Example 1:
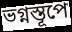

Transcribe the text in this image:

ভগ্নস্তূপে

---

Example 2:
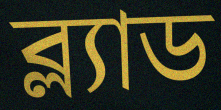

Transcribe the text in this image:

ব্ল্যাড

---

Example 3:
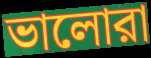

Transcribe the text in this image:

ভালোরা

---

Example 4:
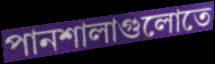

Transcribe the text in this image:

পানশালাগুলোতে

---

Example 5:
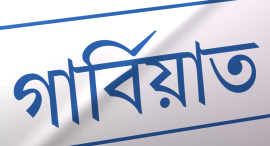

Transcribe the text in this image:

গার্বিয়াত